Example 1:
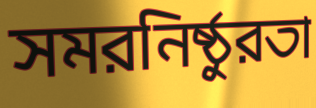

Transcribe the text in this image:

সমরনিষ্ঠুরতা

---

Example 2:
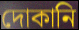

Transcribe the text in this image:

দোকানি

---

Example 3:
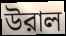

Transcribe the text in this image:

উরাল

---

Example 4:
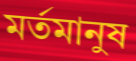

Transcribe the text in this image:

মর্তমানুষ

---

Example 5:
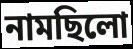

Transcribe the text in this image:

নামছিলো